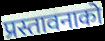
प्रस्तावनाको